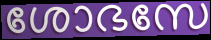
ശോഭസേ